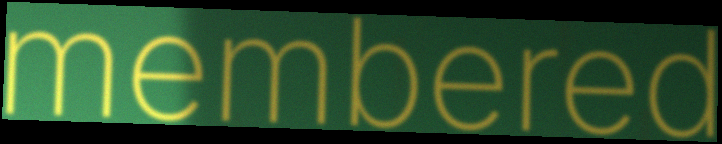
membered